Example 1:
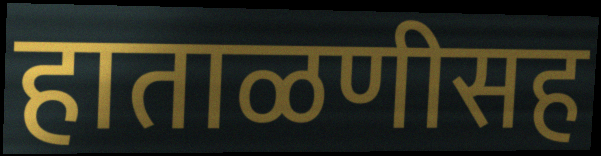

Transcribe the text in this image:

हाताळणीसह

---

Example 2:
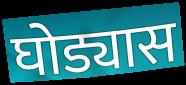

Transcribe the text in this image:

घोड्यास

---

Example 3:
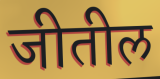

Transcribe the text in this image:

जीतील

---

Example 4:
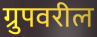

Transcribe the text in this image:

ग्रुपवरील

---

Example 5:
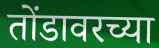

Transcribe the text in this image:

तोंडावरच्या